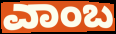
ಎಾಂಬ